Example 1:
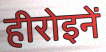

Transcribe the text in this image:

हीरोइनें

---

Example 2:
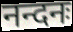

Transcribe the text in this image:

नन्दनः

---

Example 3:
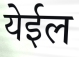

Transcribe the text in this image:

येईल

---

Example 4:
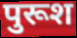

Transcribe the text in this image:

पुरूश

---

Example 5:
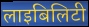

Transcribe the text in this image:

लाइबिलिटी